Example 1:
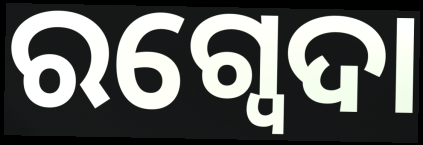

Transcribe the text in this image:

ରଗ୍ବେଦା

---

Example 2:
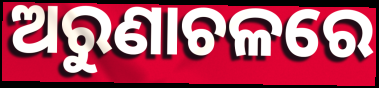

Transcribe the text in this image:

ଅରୁଣାଚଳରେ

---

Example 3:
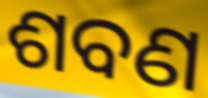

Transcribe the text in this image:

ଶବଣ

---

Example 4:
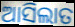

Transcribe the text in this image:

ଆସିଲାତ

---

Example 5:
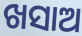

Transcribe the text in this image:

ଖସାଅ